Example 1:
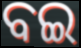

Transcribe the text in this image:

ବଇ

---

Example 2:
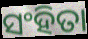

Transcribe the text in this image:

ସଂହିତା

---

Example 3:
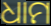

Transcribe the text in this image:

ଧାମ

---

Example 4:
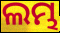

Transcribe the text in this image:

ଲମ୍ଭ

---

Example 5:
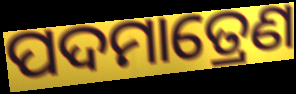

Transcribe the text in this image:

ପଦମାତ୍ରେଣ